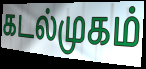
கடல்முகம்